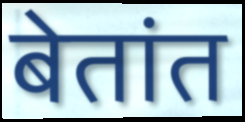
बेतांत